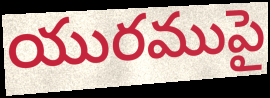
యురముపై